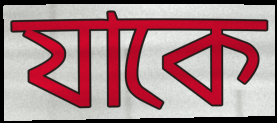
যাকে